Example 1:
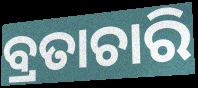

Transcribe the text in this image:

ବ୍ରତାଚାରି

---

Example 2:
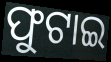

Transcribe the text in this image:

ଫୁଟାଇ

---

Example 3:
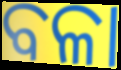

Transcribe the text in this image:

ବଳା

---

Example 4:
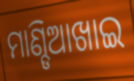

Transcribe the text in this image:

ମାଣ୍ଡିଆଖାଇ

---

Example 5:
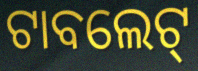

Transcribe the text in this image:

ଟାବଲେଟ୍